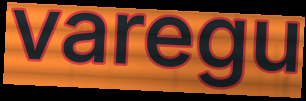
varegu